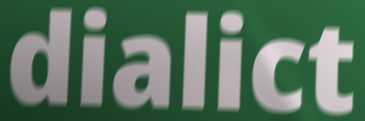
dialict